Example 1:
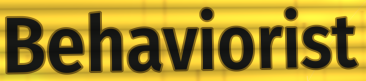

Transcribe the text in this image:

Behaviorist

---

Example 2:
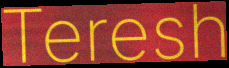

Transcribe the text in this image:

Teresh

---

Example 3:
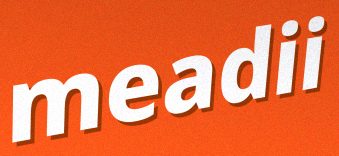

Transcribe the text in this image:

meadii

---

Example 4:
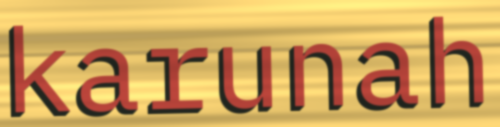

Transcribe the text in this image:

karunah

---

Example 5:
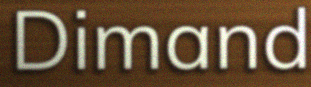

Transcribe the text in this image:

Dimand